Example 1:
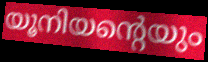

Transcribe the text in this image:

യൂനിയന്റെയും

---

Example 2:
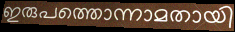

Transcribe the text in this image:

ഇരുപത്തൊന്നാമതായി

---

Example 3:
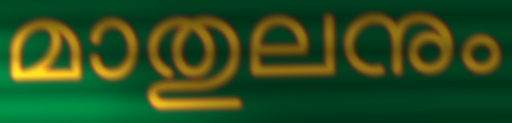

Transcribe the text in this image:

മാതുലനും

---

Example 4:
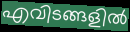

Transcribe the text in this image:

എവിടങ്ങളിൽ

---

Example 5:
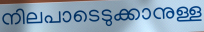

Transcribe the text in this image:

നിലപാടെടുക്കാനുള്ള